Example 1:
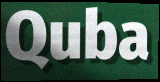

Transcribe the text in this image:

Quba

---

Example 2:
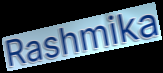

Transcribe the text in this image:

Rashmika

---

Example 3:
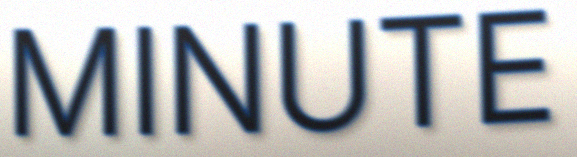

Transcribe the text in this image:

MINUTE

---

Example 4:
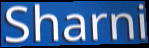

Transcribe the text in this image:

Sharni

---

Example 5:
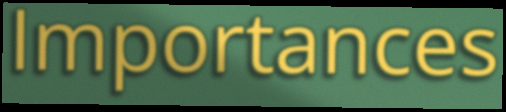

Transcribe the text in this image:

Importances